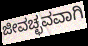
ಜೀವಚ್ಛವವಾಗಿ